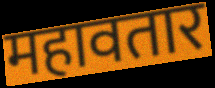
महावतार